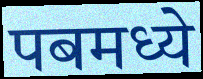
पबमध्ये